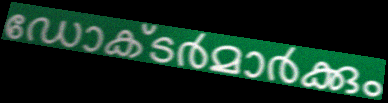
ഡോക്ടർമാർക്കും